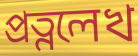
প্রত্নলেখ